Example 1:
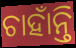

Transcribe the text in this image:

ଚାହାଁନ୍ତି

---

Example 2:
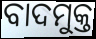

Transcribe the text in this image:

ବାଦମୁକ୍ତ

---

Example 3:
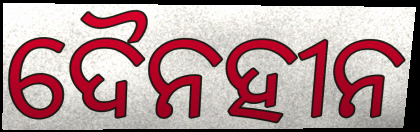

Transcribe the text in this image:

ଦୈନହୀନ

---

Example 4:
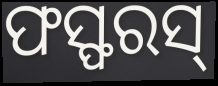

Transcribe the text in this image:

ଫସ୍ଫରସ୍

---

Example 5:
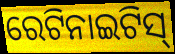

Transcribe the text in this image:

ରେଟିନାଇଟିସ୍